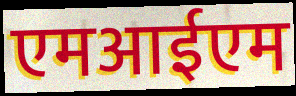
एमआईएम